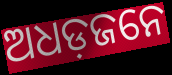
ଅଧଡ଼ଜନେ